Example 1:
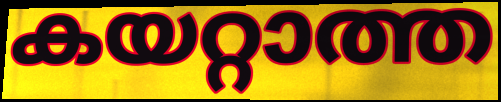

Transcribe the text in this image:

കയറ്റാത്ത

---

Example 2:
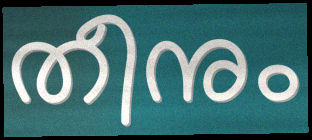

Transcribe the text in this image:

തീനും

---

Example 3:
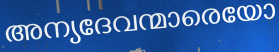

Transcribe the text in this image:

അന്യദേവന്മാരെയോ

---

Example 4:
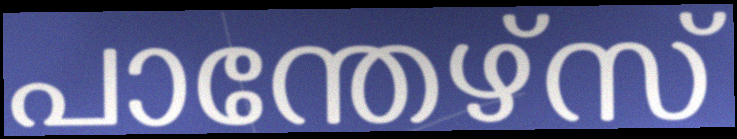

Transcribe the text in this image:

പാന്തേഴ്സ്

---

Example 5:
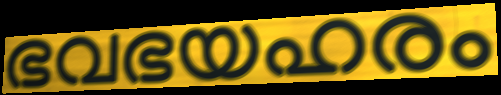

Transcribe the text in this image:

ഭവഭയഹരം